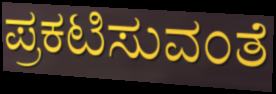
ಪ್ರಕಟಿಸುವಂತೆ